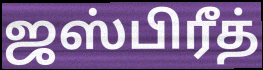
ஜஸ்பிரீத்